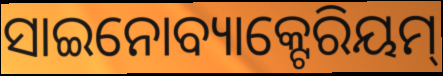
ସାଇନୋବ୍ୟାକ୍ଟେରିୟମ୍